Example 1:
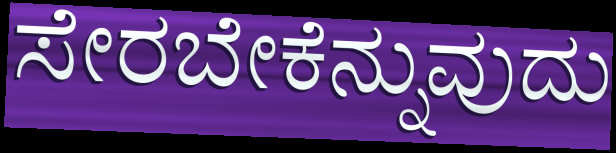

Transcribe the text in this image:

ಸೇರಬೇಕೆನ್ನುವುದು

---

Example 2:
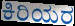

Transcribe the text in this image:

ಕಿರಿಯರ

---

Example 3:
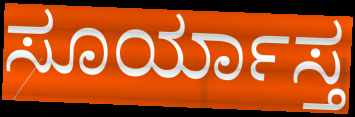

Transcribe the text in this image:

ಸೂರ್ಯಾಸ್ತ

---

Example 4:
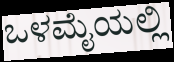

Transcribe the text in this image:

ಒಳಮೈಯಲ್ಲಿ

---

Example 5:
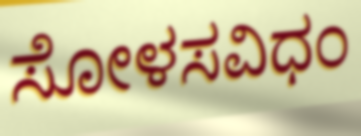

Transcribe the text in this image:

ಸೋಳಸವಿಧಂ